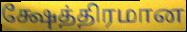
க்ஷேத்திரமான